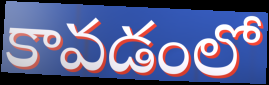
కావడంలో